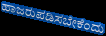
ಹಾಜರುಪಡಿಸಬೇಕೆಂದು